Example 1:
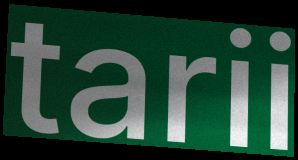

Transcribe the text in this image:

tarii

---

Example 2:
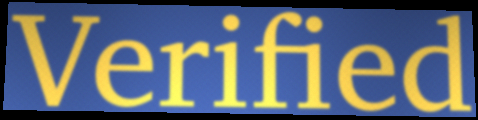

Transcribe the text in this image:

Verified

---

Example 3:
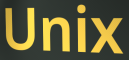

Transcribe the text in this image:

Unix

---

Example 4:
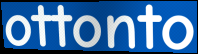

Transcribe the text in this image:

ottonto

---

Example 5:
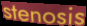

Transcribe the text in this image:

stenosis